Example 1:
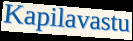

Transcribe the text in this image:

Kapilavastu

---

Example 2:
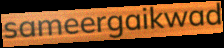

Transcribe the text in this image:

sameergaikwad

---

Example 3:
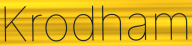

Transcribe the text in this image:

Krodham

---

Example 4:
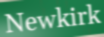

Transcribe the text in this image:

Newkirk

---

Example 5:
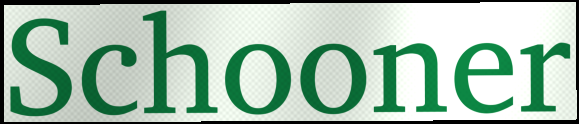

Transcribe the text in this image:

Schooner